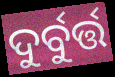
ଦୁର୍ବୁର୍ତ୍ତ